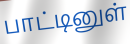
பாட்டினுள்